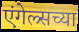
एंगेल्सच्या